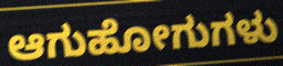
ಆಗುಹೋಗುಗಳು